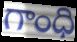
గాంధి